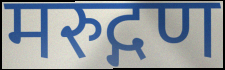
मरुद्गण